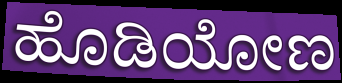
ಹೊಡಿಯೋಣ